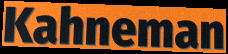
Kahneman